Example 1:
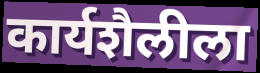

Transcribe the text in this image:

कार्यशैलीला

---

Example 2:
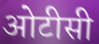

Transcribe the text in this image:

ओटीसी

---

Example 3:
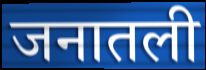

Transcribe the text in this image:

जनातली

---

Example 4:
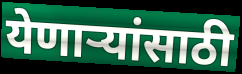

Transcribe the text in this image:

येणाऱ्यांसाठी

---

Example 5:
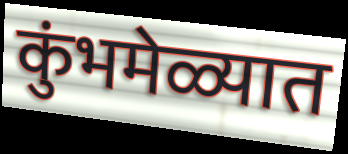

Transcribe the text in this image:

कुंभमेळ्यात